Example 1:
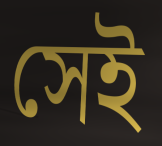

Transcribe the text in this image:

সেই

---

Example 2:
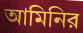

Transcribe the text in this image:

আমিনির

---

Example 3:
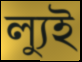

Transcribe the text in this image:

ল্যুই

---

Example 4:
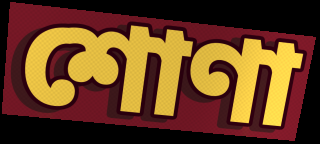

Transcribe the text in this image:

শোণা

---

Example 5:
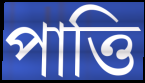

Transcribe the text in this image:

পাত্তি